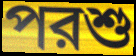
পরশু